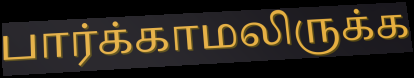
பார்க்காமலிருக்க